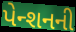
પેન્શનની